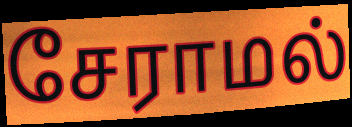
சேராமல்